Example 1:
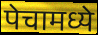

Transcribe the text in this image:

पेचामध्ये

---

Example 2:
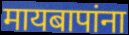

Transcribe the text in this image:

मायबापांना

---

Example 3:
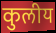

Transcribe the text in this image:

कुलीय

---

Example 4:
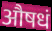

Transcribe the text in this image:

औषधं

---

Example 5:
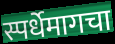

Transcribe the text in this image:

स्पर्धेमागचा